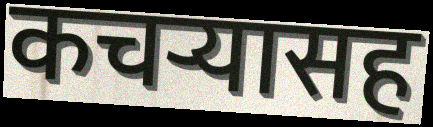
कचऱ्यासह